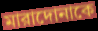
মারাদোনাকে